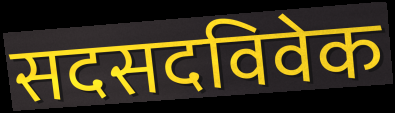
सदसदविवेक